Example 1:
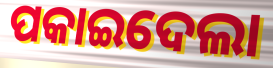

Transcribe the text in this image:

ପକାଇଦେଲା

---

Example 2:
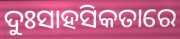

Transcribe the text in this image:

ଦୁଃସାହସିକତାରେ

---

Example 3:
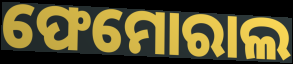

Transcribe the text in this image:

ଫେମୋରାଲ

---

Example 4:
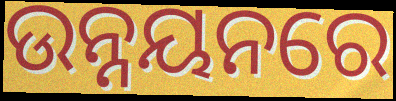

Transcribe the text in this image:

ଉନ୍ନୟନରେ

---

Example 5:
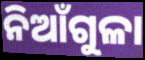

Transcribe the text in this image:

ନିଆଁଗୁଳା